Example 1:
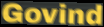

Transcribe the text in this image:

Govind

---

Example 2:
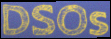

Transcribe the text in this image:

DSOs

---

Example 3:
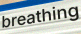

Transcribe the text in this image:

breathing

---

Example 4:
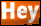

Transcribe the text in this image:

Hey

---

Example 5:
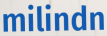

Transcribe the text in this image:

milindn